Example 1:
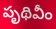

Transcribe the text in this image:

పృథివీం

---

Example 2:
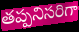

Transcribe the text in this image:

తప్పనిసరిగా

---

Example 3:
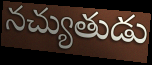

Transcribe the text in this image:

నచ్యుతుడు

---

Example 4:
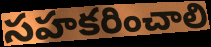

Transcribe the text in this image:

సహకరించాలి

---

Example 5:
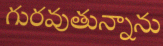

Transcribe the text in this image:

గురవుతున్నాను